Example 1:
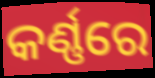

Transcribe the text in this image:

କର୍ଣ୍ଣରେ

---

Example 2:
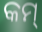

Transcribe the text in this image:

କମ୍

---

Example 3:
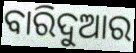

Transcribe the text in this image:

ବାରିଦୁଆର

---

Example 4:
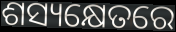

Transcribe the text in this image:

ଶସ୍ୟକ୍ଷେତରେ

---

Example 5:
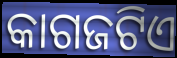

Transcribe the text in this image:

କାଗଜଟିଏ